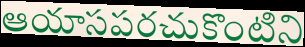
ఆయాసపరచుకొంటిని